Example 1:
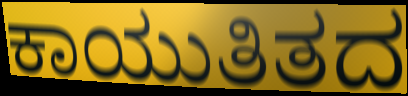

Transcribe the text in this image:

ಕಾಯುತಿತದ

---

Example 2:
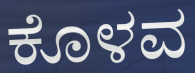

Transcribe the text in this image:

ಕೊಳವ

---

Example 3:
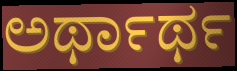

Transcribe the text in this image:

ಅರ್ಥಾರ್ಥ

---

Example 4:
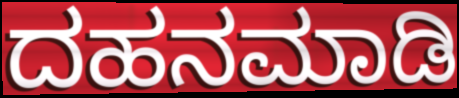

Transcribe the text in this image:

ದಹನಮಾಡಿ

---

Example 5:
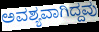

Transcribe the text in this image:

ಅವಶ್ಯವಾಗಿದ್ದವು